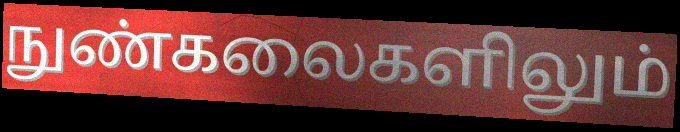
நுண்கலைகளிலும்